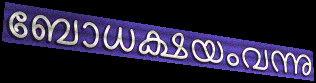
ബോധക്ഷയംവന്നു